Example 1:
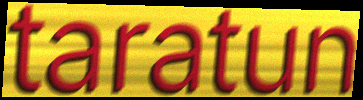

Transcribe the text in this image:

taratun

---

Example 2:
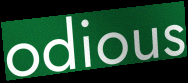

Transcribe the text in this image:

odious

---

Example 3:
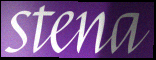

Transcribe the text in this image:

stena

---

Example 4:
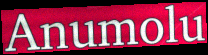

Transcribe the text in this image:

Anumolu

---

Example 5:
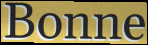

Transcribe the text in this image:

Bonne